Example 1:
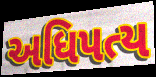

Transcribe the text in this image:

અધિપત્ય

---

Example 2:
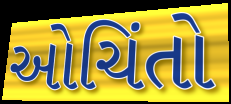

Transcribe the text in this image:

ઓચિંતો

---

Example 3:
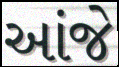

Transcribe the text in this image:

આંજે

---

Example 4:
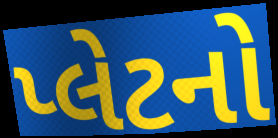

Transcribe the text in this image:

પ્લેટનો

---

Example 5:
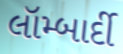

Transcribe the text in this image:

લૉમ્બાર્દી